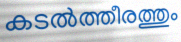
കടൽത്തീരത്തും